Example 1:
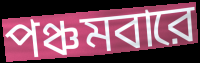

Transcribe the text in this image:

পঞ্চমবারে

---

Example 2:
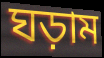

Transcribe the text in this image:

ঘড়াম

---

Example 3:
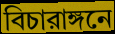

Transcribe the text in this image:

বিচারাঙ্গনে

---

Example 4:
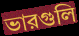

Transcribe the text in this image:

ভারগুলি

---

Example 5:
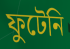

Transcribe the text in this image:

ফুটেনি